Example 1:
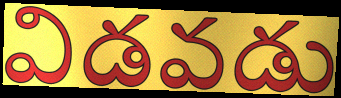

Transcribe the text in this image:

విడవడు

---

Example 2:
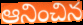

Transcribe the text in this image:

ఆనించిన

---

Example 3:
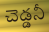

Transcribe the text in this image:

చెడ్డనీ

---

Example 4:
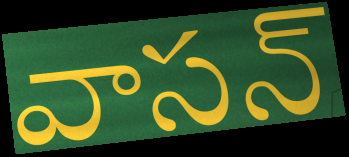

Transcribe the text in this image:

వాసన్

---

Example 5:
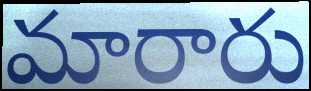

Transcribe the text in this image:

మారారు